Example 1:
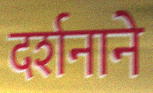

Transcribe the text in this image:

दर्शनाने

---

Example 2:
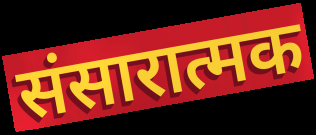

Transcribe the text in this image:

संसारात्मक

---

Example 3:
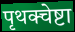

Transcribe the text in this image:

पृथक्चेष्टा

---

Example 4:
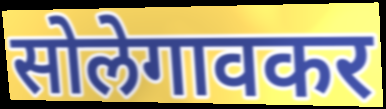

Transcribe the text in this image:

सोलेगावकर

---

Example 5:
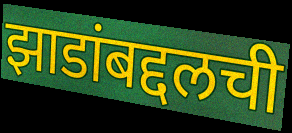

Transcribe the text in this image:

झाडांबद्दलची